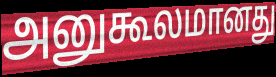
அனுகூலமானது